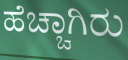
ಹೆಚ್ಚಾಗಿರು